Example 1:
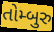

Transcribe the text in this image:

તોમ્બુરુ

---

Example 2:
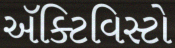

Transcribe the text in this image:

ઍક્ટિવિસ્ટો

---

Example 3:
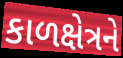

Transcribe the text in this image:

કાળક્ષેત્રને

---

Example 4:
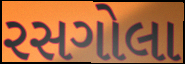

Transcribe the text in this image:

રસગોલા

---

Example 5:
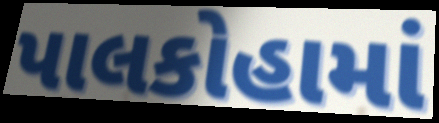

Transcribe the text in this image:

પાલકોહામાં